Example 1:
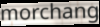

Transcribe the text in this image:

morchang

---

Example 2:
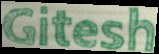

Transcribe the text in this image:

Gitesh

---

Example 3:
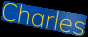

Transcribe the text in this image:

Charles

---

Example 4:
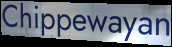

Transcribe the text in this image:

Chippewayan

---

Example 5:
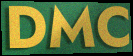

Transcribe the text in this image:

DMC